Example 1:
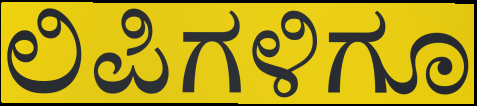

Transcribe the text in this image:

ಲಿಪಿಗಳಿಗೂ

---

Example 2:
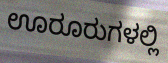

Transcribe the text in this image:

ಊರೂರುಗಳಲ್ಲಿ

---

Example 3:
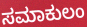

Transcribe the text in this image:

ಸಮಾಕುಲಂ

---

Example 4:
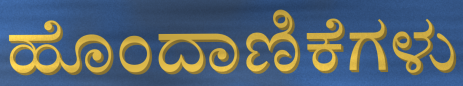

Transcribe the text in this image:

ಹೊಂದಾಣಿಕೆಗಳು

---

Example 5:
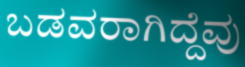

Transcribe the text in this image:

ಬಡವರಾಗಿದ್ದೆವು